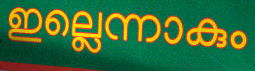
ഇല്ലെന്നാകും